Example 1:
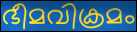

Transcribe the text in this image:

ഭീമവിക്രമം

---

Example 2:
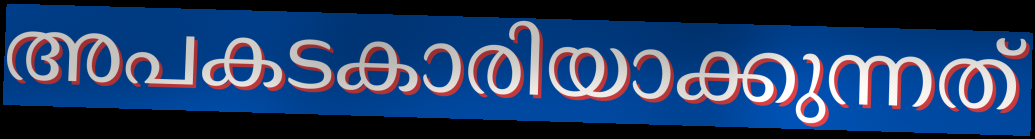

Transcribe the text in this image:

അപകടകാരിയാക്കുന്നത്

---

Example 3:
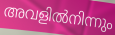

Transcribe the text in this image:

അവളിൽനിന്നും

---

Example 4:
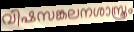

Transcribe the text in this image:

വിഷസങ്കലനശാസ്ത്രം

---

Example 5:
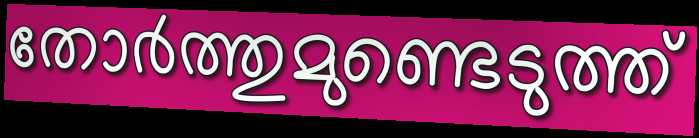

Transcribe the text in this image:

തോർത്തുമുണ്ടെടുത്ത്